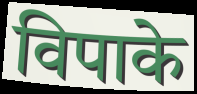
विपाके